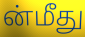
ன்மீது